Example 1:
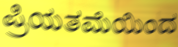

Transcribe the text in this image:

ಪ್ರಿಯತಮೆಯಿಂದ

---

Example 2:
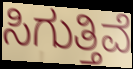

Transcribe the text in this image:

ಸಿಗುತ್ತಿವೆ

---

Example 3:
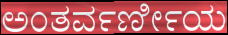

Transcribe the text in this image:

ಅಂತರ್ವರ್ಣೀಯ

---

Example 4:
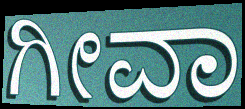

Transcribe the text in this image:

ಗೀವಾ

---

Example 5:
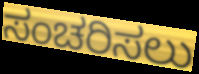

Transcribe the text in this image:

ಸಂಚರಿಸಲು